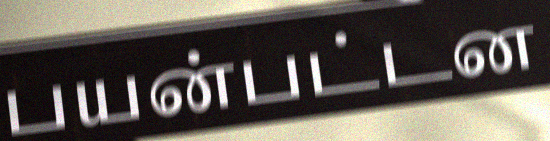
பயன்பட்டன